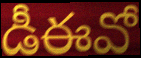
డీఈవో